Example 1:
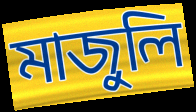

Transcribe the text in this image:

মাজুলি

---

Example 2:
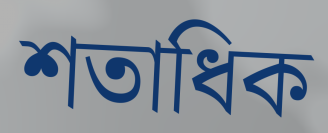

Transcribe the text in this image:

শতাধিক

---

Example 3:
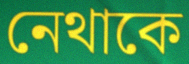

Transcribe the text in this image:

নেথাকে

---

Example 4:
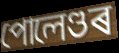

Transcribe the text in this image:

পোলেণ্ডৰ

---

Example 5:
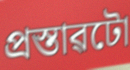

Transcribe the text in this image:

প্ৰস্তাৱটো